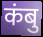
कंबु